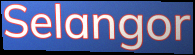
Selangor